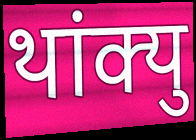
थांक्यु